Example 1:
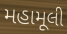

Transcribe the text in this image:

મહામૂલી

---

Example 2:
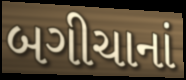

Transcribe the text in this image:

બગીચાનાં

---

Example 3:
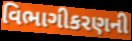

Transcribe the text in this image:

વિભાગીકરણની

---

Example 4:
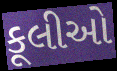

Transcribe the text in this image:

કૂલીઓ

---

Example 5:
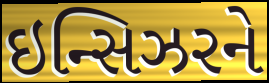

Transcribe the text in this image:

ઇન્સિઝરને